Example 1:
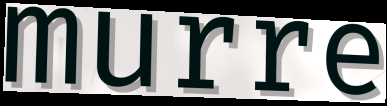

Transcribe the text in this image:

murre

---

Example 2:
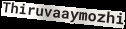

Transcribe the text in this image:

Thiruvaaymozhi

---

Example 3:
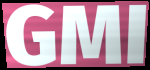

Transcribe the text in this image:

GMI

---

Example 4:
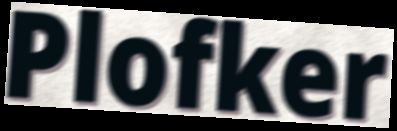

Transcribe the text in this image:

Plofker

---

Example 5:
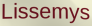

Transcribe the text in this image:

Lissemys